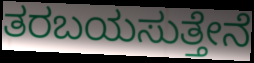
ತರಬಯಸುತ್ತೇನೆ